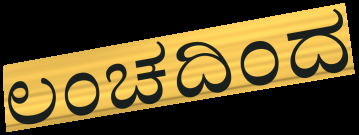
ಲಂಚದಿಂದ